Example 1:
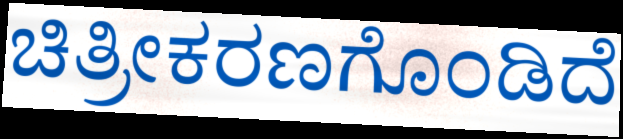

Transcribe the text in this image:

ಚಿತ್ರೀಕರಣಗೊಂಡಿದೆ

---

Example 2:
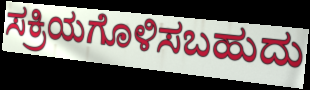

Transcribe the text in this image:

ಸಕ್ರಿಯಗೊಳಿಸಬಹುದು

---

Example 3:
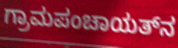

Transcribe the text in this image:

ಗ್ರಾಮಪಂಚಾಯತ್‌ನ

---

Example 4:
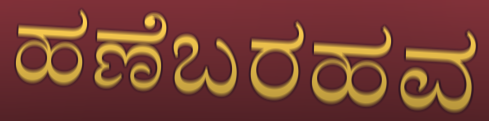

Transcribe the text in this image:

ಹಣೆಬರಹವ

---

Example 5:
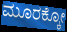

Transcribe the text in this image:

ಮೂರಕ್ಕೋ